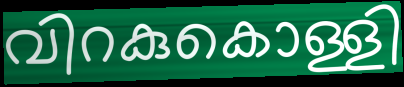
വിറകുകൊള്ളി